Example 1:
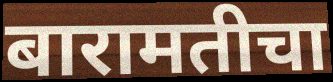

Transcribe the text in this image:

बारामतीचा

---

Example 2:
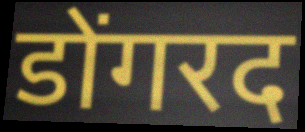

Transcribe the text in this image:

डोंगरद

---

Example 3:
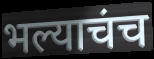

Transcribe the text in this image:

भल्याचंच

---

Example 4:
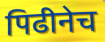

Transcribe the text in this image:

पिढीनेच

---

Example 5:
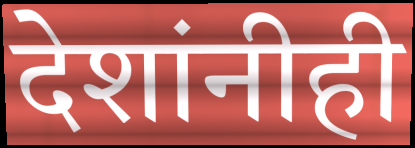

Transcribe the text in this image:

देशांनीही